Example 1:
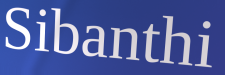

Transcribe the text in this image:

Sibanthi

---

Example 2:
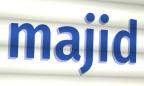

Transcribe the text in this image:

majid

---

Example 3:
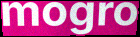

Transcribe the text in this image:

mogro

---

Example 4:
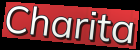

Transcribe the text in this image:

Charita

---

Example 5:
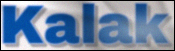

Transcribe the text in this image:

Kalak